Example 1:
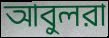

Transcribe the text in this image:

আবুলরা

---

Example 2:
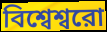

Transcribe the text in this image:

বিশ্বেশ্বরো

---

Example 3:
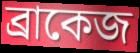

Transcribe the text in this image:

ব্রাকেজ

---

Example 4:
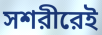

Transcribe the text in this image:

সশরীরেই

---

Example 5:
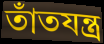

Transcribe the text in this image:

তাঁতযন্ত্র